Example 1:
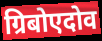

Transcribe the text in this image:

ग्रिबोएदोव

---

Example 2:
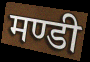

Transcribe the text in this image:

मण्डी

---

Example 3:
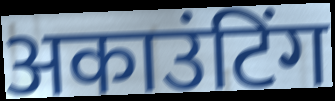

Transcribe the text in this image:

अकाउंटिंग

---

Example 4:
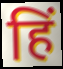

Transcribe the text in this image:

हिं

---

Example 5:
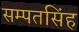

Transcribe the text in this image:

सम्पतसिंह